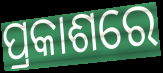
ପ୍ରକାଶରେ